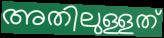
അതിലുള്ളത്